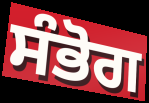
ਸੰਭੋਗ